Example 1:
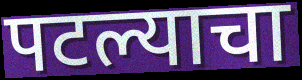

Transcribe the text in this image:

पटल्याचा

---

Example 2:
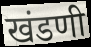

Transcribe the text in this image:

खंडणी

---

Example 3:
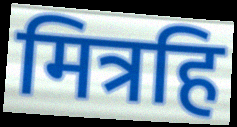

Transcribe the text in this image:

मित्रहि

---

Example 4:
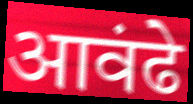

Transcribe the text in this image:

आवंढे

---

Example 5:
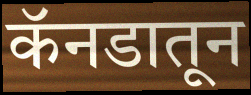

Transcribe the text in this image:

कॅनडातून